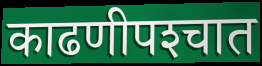
काढणीपश्‍चात